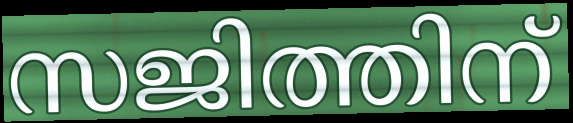
സജിത്തിന്